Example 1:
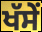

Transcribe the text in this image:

ਖੱਸੇਂ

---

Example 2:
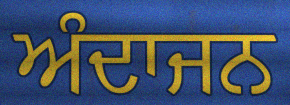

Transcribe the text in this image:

ਅੰਦਾਜਨ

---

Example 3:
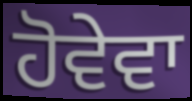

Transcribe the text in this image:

ਹੋਵੇਵਾ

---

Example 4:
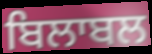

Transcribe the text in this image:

ਬਿਲਾਬਲ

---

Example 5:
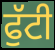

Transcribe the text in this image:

ਫੁੱਟੀ